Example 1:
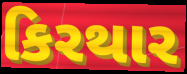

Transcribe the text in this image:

કિરથાર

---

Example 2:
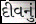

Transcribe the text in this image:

દીવનું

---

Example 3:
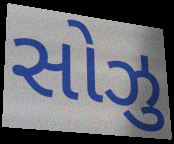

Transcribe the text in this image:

સોઝુ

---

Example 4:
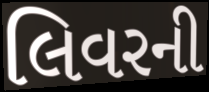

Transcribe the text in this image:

લિવરની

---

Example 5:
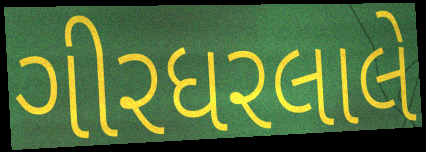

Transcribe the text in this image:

ગીરધરલાલે